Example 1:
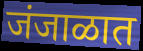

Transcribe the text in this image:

जंजाळात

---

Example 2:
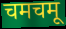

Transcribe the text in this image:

चमचमू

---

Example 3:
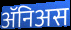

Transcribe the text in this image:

ॲनिअस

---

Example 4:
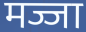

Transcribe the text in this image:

मज्जा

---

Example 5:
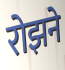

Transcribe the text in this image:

रोझने